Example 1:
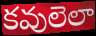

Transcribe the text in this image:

కవులెలా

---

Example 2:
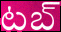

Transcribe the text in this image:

టబ్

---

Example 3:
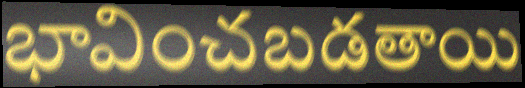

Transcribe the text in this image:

భావించబడతాయి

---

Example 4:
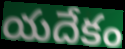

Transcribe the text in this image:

యదేకం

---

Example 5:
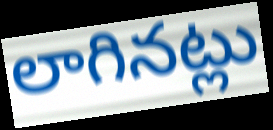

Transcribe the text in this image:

లాగినట్లు